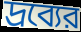
দ্রব্যের